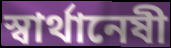
স্বার্থানেষী